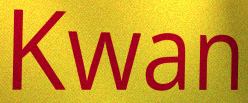
Kwan